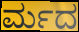
ರ್ಮದ